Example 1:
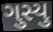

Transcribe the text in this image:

ગુસ્યુ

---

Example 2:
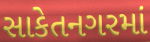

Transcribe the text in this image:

સાકેતનગરમાં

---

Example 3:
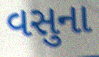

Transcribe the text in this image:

વસુના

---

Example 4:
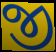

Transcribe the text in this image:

જી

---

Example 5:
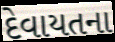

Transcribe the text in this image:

દેવાયતના